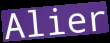
Alier